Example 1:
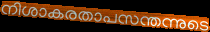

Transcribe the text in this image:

നിശാകരതാപസന്തന്നുടെ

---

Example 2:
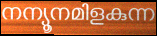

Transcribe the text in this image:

നന്യൂനമിളകുന്ന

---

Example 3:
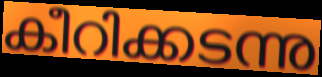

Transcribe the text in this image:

കീറിക്കടന്നു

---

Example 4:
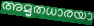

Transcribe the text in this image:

അമൃതധാരയാ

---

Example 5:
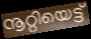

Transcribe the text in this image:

നൂറ്റിയെട്ട്